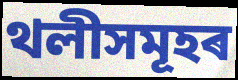
থলীসমূহৰ